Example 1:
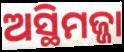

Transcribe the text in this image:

ଅସ୍ଥିମଜ୍ଜା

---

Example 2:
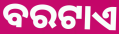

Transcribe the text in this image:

ବରଟାଏ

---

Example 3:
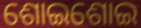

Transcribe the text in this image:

ଶୋଇଶୋଇ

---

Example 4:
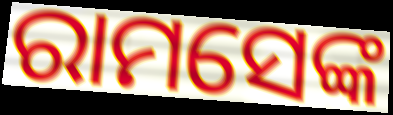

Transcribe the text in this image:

ରାମସେଙ୍କ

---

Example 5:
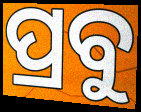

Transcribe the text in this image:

ପ୍ରବୁ